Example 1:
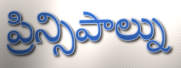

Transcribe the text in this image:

ప్రిన్సిపాల్ను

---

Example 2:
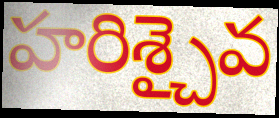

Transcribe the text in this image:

హరిశ్చైవ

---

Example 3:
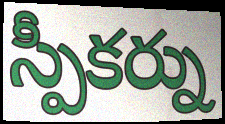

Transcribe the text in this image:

స్పీకర్ను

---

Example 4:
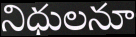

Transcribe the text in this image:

నిధులనూ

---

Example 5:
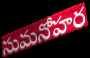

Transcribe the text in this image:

సుమనోహర